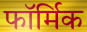
फॉर्मिक